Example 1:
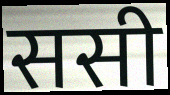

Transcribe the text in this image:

ससी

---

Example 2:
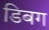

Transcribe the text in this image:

डिबग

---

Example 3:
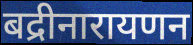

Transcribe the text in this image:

बद्रीनारायणन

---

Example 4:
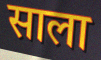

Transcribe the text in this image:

साला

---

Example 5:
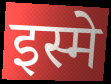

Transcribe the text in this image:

इस्मे